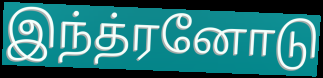
இந்த்ரனோடு